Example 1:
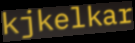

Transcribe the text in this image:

kjkelkar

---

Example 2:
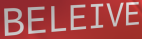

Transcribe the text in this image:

BELEIVE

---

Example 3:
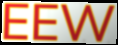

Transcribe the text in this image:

EEW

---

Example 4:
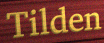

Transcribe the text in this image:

Tilden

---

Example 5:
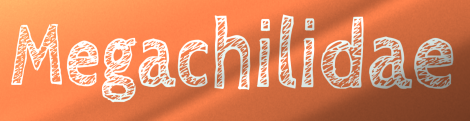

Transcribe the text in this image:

Megachilidae